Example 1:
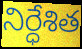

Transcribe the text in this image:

నిర్ధేశిత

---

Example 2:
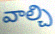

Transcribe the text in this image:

వాల్చి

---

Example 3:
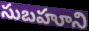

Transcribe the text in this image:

సుబహూని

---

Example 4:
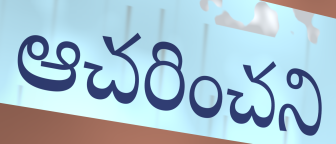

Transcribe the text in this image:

ఆచరించని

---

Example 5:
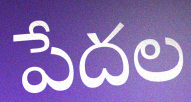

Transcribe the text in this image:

పేదల